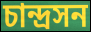
চান্দ্রসন